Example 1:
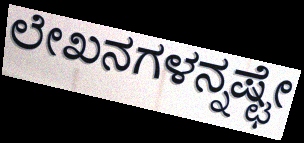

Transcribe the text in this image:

ಲೇಖನಗಳನ್ನಷ್ಟೇ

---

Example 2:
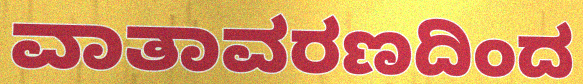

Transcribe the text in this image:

ವಾತಾವರಣದಿಂದ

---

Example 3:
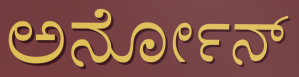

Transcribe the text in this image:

ಅರ್ನೋನ್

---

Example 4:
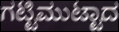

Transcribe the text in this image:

ಗಟ್ಟಿಮುಟ್ಟಾದ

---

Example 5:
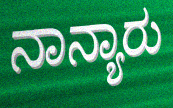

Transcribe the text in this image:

ನಾನ್ಯಾರು